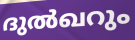
ദുൽഖറും